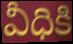
వీధికి